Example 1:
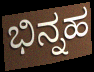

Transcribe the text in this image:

ಭಿನ್ನಹ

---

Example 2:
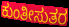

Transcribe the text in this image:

ಕುಂತೀಸುತರ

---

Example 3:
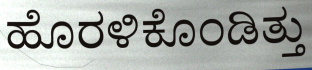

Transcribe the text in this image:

ಹೊರಳಿಕೊಂಡಿತ್ತು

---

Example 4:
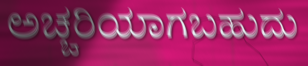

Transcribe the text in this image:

ಅಚ್ಚರಿಯಾಗಬಹುದು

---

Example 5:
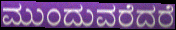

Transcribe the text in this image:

ಮುಂದುವರೆದರೆ